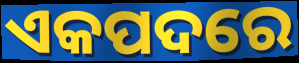
ଏକପଦରେ